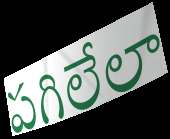
పగిలేలా